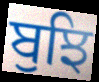
ਬੁਝਿ